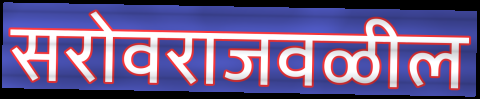
सरोवराजवळील